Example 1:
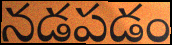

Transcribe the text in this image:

నడపడం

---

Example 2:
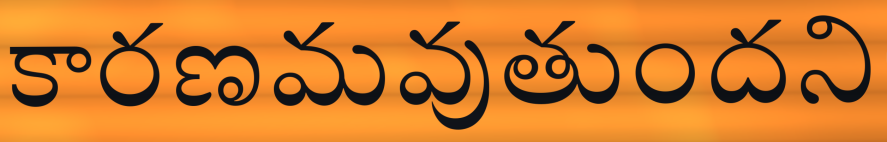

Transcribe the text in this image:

కారణమవుతుందని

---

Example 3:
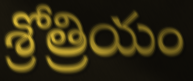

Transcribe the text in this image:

శ్రోత్రియం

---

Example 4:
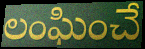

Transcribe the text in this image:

లంఘించే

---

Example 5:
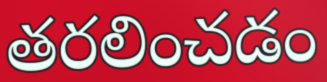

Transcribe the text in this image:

తరలించడం